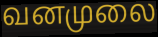
வனமுலை